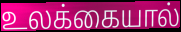
உலக்கையால்